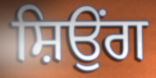
ਸ਼ਿਉਂਗ